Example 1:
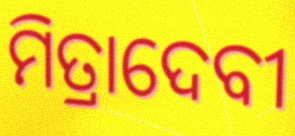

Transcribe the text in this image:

ମିତ୍ରାଦେବୀ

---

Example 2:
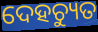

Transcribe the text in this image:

ଦେହଚ୍ୟୁତ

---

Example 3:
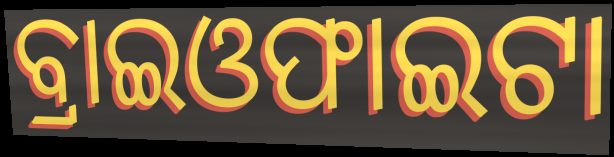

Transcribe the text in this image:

ବ୍ରାଇଓଫାଇଟା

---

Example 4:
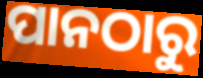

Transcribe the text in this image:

ପାନଠାରୁ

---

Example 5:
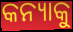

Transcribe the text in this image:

କନ୍ୟାକୁ